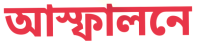
আস্ফালনে